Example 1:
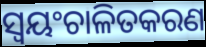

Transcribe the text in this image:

ସ୍ୱୟଂଚାଳିତକରଣ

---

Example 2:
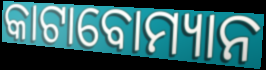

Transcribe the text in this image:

କାଟାବୋମ୍ୟାନ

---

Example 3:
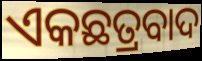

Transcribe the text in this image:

ଏକଛତ୍ରବାଦ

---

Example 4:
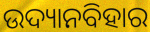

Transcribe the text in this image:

ଉଦ୍ୟାନବିହାର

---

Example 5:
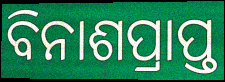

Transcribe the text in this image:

ବିନାଶପ୍ରାପ୍ତ